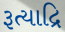
રૂત્યાદ્રિ